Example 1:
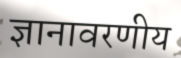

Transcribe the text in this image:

ज्ञानावरणीय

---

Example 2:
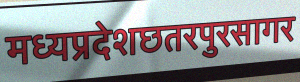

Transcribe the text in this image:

मध्यप्रदेशछतरपुरसागर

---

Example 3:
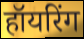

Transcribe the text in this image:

हॉयरिंग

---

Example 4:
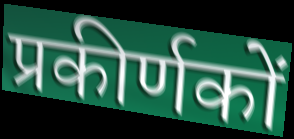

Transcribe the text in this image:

प्रकीर्णकों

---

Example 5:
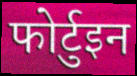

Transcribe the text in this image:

फोर्टुइन